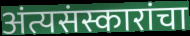
अंत्यसंस्कारांचा